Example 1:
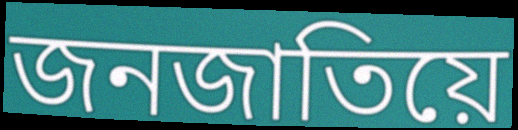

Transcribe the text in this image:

জনজাতিয়ে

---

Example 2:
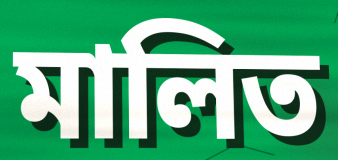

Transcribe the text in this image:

মালিত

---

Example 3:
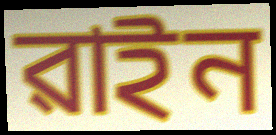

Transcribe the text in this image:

ৱাইন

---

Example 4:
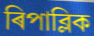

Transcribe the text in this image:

ৰিপাব্লিক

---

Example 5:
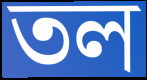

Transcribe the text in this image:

তল